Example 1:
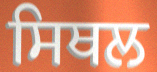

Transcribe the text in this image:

ਸਿਥਲ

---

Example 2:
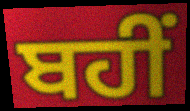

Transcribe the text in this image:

ਬਹੀਂ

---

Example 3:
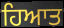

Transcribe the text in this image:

ਹਿਆਤ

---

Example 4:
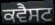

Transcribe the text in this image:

ਕਵੈਸਟ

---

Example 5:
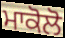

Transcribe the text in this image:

ਮਾਕੋਲੋ